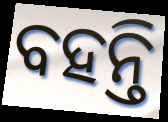
ବହନ୍ତି